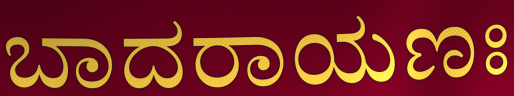
ಬಾದರಾಯಣಃ